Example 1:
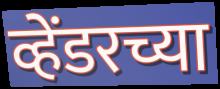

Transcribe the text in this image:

व्हेंडरच्या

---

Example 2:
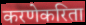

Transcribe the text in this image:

करणेकरिता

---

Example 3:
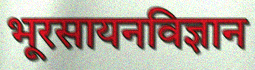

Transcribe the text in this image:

भूरसायनविज्ञान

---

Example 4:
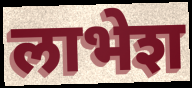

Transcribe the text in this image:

लाभेश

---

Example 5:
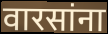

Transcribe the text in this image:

वारसांना